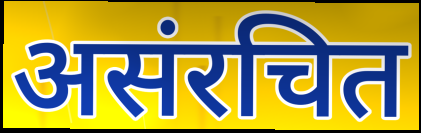
असंरचित